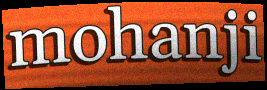
mohanji